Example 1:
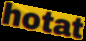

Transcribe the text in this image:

hotat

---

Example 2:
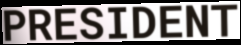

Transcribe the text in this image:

PRESIDENT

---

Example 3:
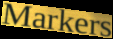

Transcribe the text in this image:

Markers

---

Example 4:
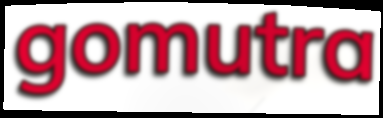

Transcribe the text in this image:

gomutra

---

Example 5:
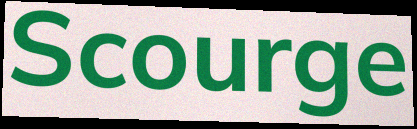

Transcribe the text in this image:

Scourge